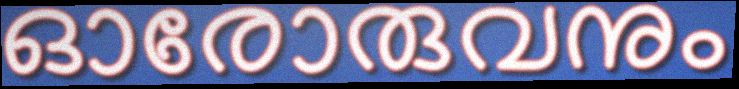
ഓരോരുവനും